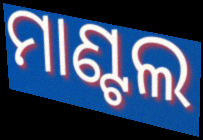
ମାଣ୍ଟଲ